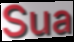
Sua